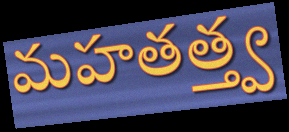
మహతత్త్వ